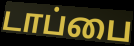
டாப்பை